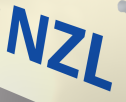
NZL